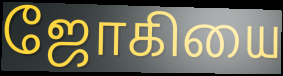
ஜோகியை